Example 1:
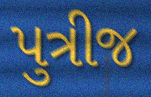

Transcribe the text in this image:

પુત્રીજ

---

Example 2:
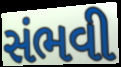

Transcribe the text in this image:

સંભવી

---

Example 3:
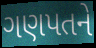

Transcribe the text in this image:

ગણપતને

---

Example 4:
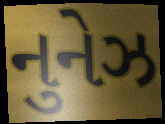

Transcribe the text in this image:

નુનેઝ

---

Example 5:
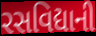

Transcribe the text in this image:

રસવિદ્યાની